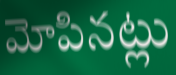
మోపినట్లు